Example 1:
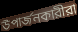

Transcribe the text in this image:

উপার্জনকারীরা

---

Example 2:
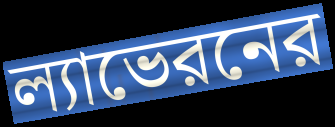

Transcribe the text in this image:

ল্যাভেরনের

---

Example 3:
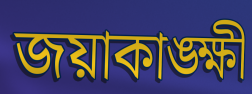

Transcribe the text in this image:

জয়াকাঙ্ক্ষী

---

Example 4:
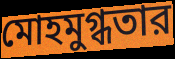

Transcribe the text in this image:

মোহমুগ্ধতার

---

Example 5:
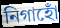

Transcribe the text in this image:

নিগাহোঁ